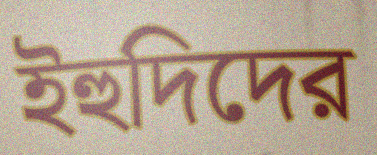
ইহুদিদের